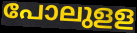
പോലുളള